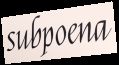
subpoena